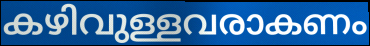
കഴിവുള്ളവരാകണം